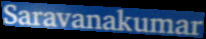
Saravanakumar